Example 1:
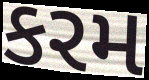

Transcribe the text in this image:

કરમ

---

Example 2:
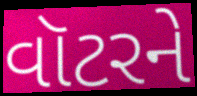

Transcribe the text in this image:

વૉટરને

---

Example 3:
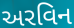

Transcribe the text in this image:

અરવિન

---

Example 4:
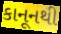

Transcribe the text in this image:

કાનૂનથી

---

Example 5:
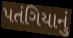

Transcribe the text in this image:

પતંગિયાનું